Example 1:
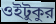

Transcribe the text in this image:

ওইটুকুর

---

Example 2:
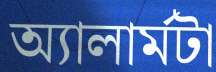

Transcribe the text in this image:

অ্যালার্মটা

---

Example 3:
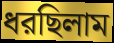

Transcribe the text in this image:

ধরছিলাম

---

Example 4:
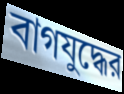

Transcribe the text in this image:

বাগযুদ্ধের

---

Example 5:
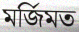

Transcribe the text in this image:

মর্জিমত